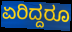
ಏರಿದ್ದರೂ